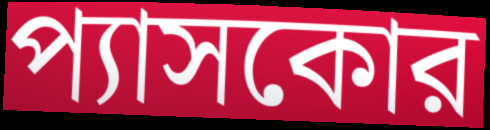
প্যাসকোর